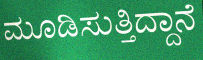
ಮೂಡಿಸುತ್ತಿದ್ದಾನೆ